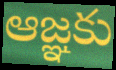
ఆజ్ఞకు